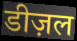
डीज़ल